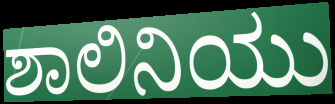
ಶಾಲಿನಿಯು